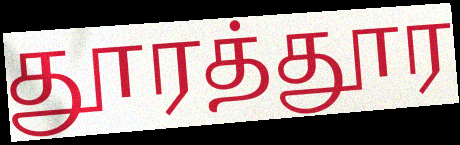
தூரத்தூர